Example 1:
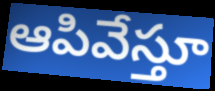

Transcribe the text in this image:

ఆపివేస్తూ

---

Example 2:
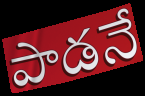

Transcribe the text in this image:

పాడనే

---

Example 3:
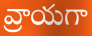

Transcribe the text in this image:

వ్రాయగా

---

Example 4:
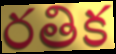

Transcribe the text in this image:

రతిక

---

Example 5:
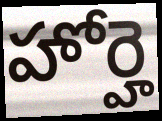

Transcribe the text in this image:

హోర్హె